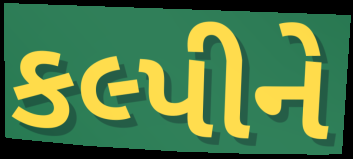
કલ્પીને